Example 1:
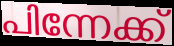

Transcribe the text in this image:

പിന്നേക്ക്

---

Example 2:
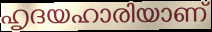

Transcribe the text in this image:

ഹൃദയഹാരിയാണ്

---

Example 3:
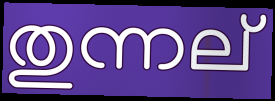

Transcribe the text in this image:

തുന്നല്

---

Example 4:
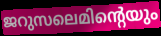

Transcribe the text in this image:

ജറുസലെമിന്റെയും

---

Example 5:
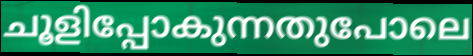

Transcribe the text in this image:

ചൂളിപ്പോകുന്നതുപോലെ